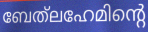
ബേത്‌ലഹേമിന്റെ